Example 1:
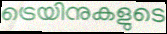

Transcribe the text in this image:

ട്രെയിനുകളുടെ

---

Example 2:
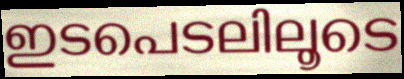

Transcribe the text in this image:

ഇടപെടലിലൂടെ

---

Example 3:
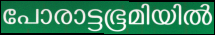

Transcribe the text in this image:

പോരാട്ടഭൂമിയിൽ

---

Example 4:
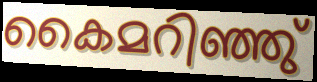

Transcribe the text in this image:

കൈമറിഞ്ഞു്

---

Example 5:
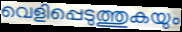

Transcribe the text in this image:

വെളിപ്പെടുത്തുകയും